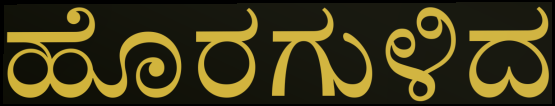
ಹೊರಗುಳಿದ